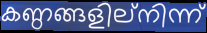
കണ്ഠങ്ങളില്നിന്ന്